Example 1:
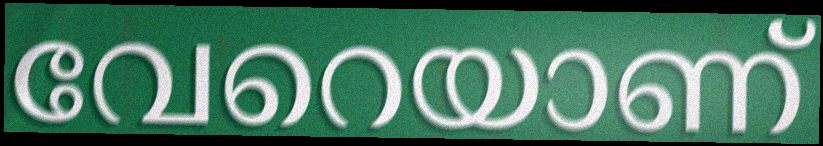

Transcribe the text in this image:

വേറെയാണ്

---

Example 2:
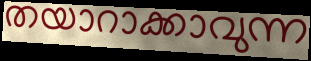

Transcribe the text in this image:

തയാറാക്കാവുന്ന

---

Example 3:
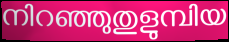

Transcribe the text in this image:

നിറഞ്ഞുതുളുമ്പിയ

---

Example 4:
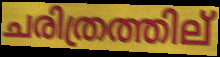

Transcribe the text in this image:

ചരിത്രത്തില്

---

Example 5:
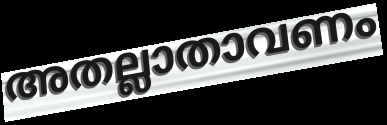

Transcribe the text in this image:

അതല്ലാതാവണം